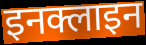
इनक्लाइन